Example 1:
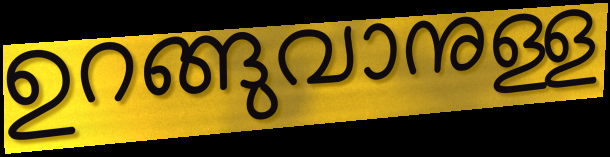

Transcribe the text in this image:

ഉറങ്ങുവാനുള്ള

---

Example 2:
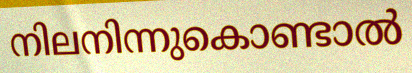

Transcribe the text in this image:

നിലനിന്നുകൊണ്ടാൽ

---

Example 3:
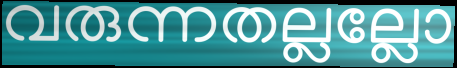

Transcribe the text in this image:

വരുന്നതല്ലല്ലോ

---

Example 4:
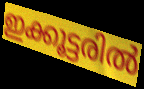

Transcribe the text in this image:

ഇക്കൂട്ടരിൽ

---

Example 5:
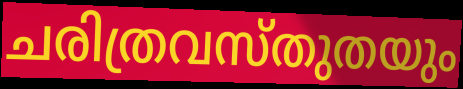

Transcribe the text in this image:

ചരിത്രവസ്തുതയും